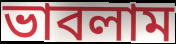
ভাবলাম